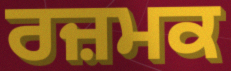
ਰਜ਼ਮਕ